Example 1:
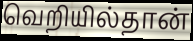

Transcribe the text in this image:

வெறியில்தான்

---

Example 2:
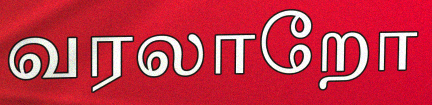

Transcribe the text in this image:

வரலாறோ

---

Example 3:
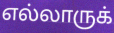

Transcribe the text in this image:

எல்லாருக்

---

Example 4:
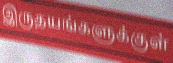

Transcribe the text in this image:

இருதயங்களுக்குள்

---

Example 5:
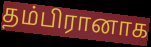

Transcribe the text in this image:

தம்பிரானாக